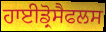
ਹਾਈਡ੍ਰੋਸੈਫਲਸ